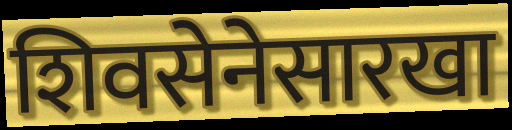
शिवसेनेसारखा